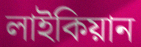
লাইকিয়ান